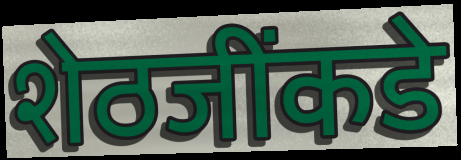
शेठजींकडे